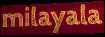
milayala